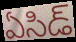
ఏసిడ్